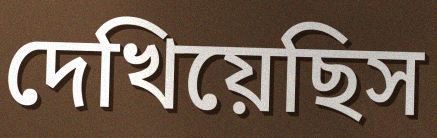
দেখিয়েছিস